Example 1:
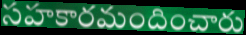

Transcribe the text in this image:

సహకారమందించారు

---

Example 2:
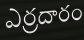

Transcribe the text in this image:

ఎర్రదారం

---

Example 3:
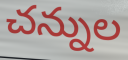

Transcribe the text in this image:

చన్నుల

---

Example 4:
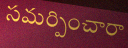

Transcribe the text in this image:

సమర్పించారా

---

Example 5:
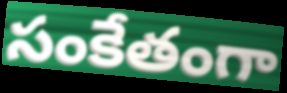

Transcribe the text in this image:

సంకేతంగా